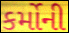
કર્મોની